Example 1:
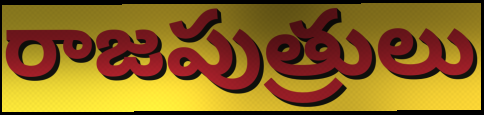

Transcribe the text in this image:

రాజపుత్రులు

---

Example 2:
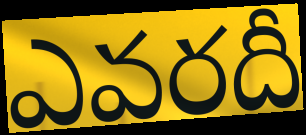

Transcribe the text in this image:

ఎవరదీ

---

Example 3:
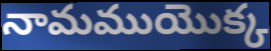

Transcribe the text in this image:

నామముయొక్క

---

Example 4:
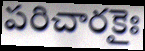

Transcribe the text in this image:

పరిచారకైః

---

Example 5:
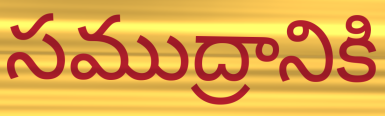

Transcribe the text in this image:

సముద్రానికి